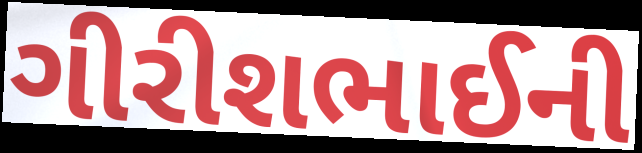
ગીરીશભાઈની